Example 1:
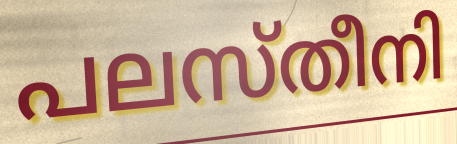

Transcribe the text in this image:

പലസ്തീനി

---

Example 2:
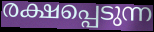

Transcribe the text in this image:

രക്ഷപ്പെടുന്ന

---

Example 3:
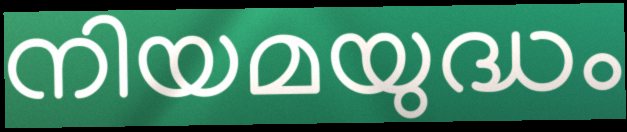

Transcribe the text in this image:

നിയമയുദ്ധം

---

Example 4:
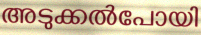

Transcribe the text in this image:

അടുക്കൽപോയി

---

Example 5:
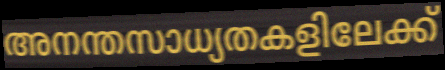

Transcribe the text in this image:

അനന്തസാധ്യതകളിലേക്ക്